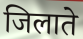
जिलाते